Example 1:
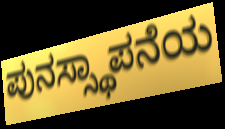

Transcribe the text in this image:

ಪುನಸ್ಸ್ಥಾಪನೆಯ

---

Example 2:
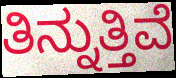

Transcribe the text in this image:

ತಿನ್ನುತ್ತಿವೆ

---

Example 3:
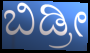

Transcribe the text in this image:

ಬಿಡ್ರೀ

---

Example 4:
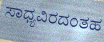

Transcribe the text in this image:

ಸಾಧ್ಯವಿರದಂತಹ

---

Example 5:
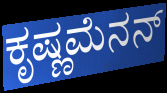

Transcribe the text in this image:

ಕೃಷ್ಣಮೆನನ್